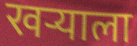
खर्‍याला